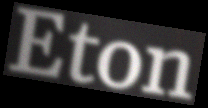
Eton